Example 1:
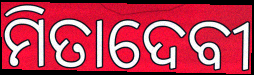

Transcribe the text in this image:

ମିତାଦେବୀ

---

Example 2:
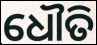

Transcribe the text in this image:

ଧୌତି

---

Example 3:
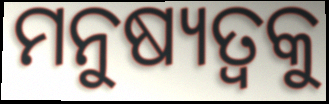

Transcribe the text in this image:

ମନୁଷ୍ୟତ୍ୱକୁ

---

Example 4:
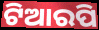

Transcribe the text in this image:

ଟିଆରପି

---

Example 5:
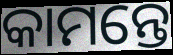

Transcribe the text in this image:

କାମନ୍ତେ